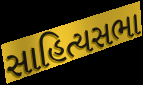
સાહિત્યસભા